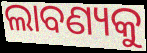
ଲାବଣ୍ୟକୁ